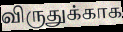
விருதுக்காக